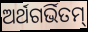
ଅର୍ଥଗର୍ଭିତମ୍